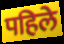
पहिले